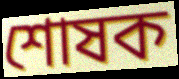
শোষক